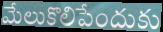
మేలుకొలిపేందుకు